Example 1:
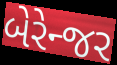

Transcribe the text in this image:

બેરેન્જર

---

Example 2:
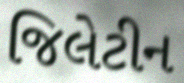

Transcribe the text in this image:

જિલેટીન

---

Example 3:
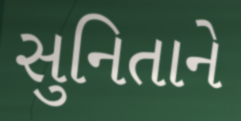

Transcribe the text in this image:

સુનિતાને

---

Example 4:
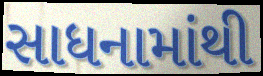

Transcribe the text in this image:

સાધનામાંથી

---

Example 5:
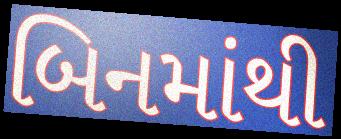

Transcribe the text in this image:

બિનમાંથી